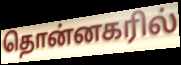
தொன்னகரில்